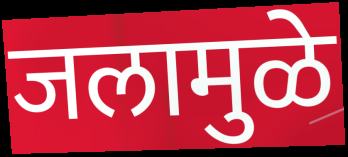
जलामुळे